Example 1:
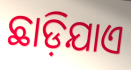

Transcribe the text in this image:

ଛାଡ଼ିଯାଏ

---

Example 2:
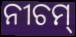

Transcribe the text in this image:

ନୀଚମ୍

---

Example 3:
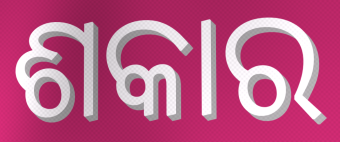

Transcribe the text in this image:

ଶକାର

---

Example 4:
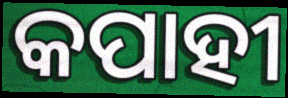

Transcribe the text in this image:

କପାହୀ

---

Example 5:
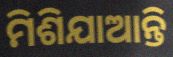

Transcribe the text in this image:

ମିଶିଯାଆନ୍ତି